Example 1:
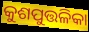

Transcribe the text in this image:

କୁଶପୁତ୍ତଳିକା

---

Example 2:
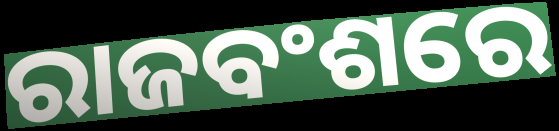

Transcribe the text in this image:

ରାଜବଂଶରେ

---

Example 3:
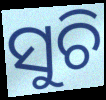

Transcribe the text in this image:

ସୁଚି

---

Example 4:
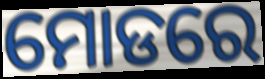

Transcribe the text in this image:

ମୋଡରେ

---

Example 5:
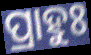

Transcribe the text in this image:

ପ୍ରାହୁଃ